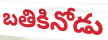
బతికినోడు